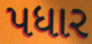
પધાર